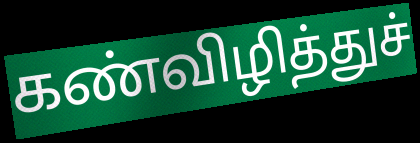
கண்விழித்துச்